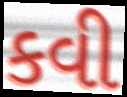
કવી